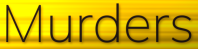
Murders